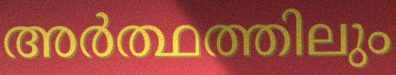
അർത്ഥത്തിലും